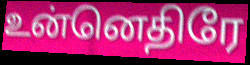
உன்னெதிரே